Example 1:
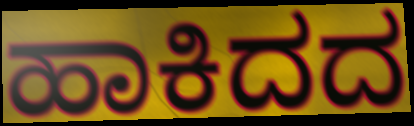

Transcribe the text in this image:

ಹಾಕಿದದ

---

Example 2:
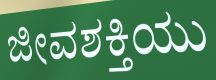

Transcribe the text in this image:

ಜೀವಶಕ್ತಿಯು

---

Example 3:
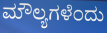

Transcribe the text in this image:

ಮೌಲ್ಯಗಳೆಂದು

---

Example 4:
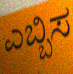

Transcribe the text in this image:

ಎಬ್ಬಿಸ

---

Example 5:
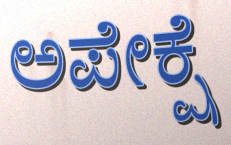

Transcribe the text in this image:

ಅಪೇಕ್ಷೆ